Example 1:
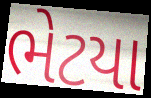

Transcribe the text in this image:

ભેટયા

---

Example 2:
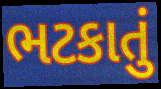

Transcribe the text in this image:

ભટકાતું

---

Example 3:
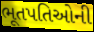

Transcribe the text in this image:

ભૂતપતિઓની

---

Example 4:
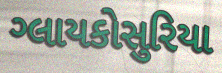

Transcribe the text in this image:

ગ્લાયકોસુરિયા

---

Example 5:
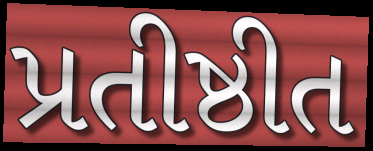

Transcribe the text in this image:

પ્રતીષ્ઠીત